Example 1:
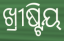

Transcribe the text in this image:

ଖ୍ରୀଷ୍ଟିୟ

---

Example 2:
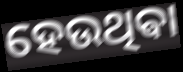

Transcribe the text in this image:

ହେଉଥିଵା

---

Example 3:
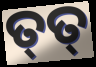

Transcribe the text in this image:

ତ୍‌ତ୍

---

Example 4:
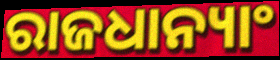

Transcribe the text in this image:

ରାଜଧାନ୍ୟାଂ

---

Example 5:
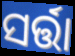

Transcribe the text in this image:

ସର୍ତ୍ତା